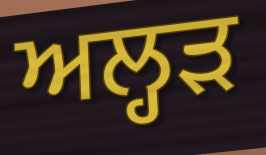
ਅਲ੍ਹੜ